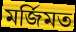
মর্জিমত